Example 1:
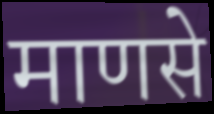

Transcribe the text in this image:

माणसे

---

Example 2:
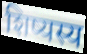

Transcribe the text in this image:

शिष्यस्य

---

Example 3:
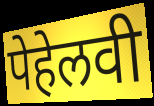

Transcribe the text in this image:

पेहेलवी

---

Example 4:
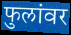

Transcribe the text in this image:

फुलांवर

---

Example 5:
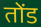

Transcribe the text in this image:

तोंड